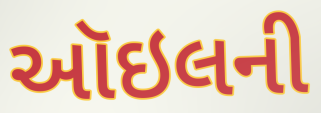
ઑઇલની